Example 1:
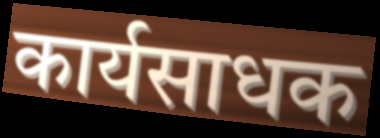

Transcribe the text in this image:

कार्यसाधक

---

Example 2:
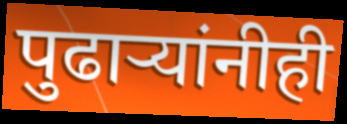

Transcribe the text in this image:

पुढाऱ्यांनीही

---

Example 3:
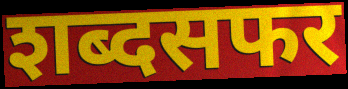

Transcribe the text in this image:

शब्दसफर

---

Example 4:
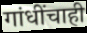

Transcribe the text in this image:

गांधींचाही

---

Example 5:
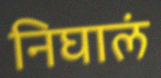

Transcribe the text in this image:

निघालं